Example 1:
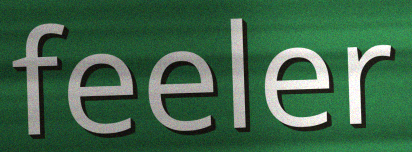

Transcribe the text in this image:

feeler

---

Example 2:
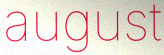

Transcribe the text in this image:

august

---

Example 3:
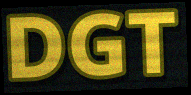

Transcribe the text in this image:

DGT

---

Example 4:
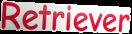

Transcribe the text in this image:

Retriever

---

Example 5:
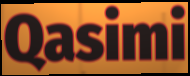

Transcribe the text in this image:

Qasimi